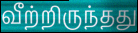
வீற்றிருந்தது